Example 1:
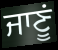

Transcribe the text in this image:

ਜਾਣੂਂ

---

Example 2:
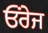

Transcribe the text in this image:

ਓਂਰੇਜ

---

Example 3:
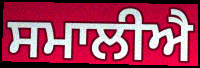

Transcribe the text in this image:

ਸਮਾਲੀਐ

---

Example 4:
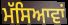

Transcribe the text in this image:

ਮੱਸਿਆਵਾਂ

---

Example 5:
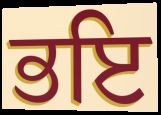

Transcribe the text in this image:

ਭਇ